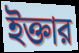
ইক্তার